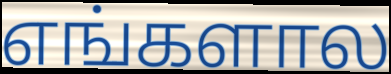
எங்களால